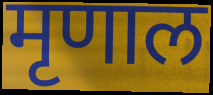
मृणाल